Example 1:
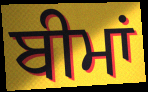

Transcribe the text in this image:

ਬੀਮਾਂ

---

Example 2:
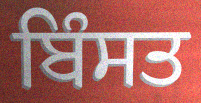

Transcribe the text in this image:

ਬਿੰਸਤ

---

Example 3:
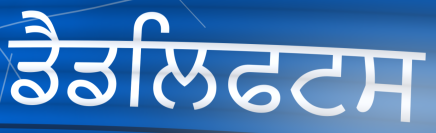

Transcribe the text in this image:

ਡੈਡਲਿਫਟਸ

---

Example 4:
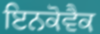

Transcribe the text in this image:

ਇਨਕੋਵੈਕ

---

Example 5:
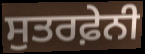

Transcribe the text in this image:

ਸੁਤਰਫ਼ੇਨੀ